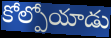
కోల్పోయాడు